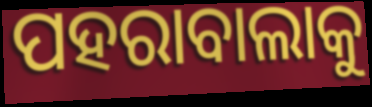
ପହରାବାଲାକୁ